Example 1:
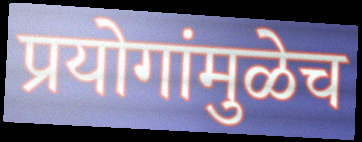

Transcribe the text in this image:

प्रयोगांमुळेच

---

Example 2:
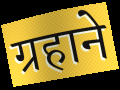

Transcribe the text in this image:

ग्रहाने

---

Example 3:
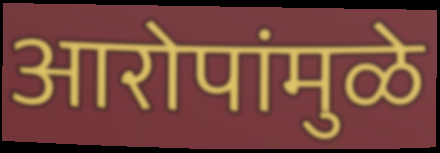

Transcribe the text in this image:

आरोपांमुळे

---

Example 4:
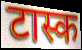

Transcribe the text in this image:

टास्क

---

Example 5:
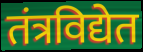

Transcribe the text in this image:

तंत्रविद्येत